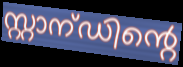
സ്റ്റാന്ഡിന്റെ